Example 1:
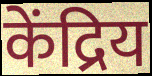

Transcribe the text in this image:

केंद्रिय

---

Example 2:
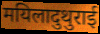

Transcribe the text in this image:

मयिलादुथुराई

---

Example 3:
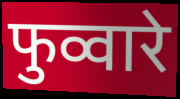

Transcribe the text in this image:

फुव्वारे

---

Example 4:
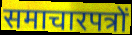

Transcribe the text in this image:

समाचारपत्रों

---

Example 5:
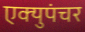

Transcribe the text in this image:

एक्युपंचर